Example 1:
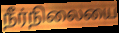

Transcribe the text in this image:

நீர்நிலையை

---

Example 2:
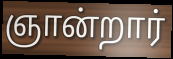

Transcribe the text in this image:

ஞான்றார்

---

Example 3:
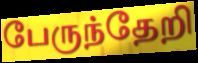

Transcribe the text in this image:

பேருந்தேறி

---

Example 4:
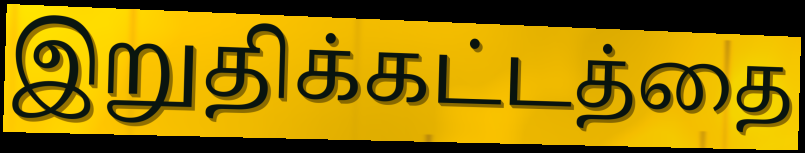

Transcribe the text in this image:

இறுதிக்கட்டத்தை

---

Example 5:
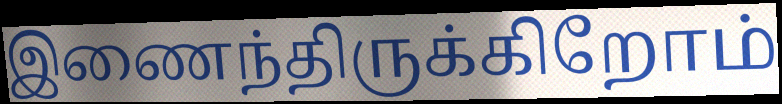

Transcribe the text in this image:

இணைந்திருக்கிறோம்